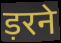
ड़रने